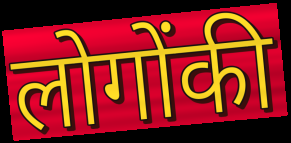
लोगोंकी